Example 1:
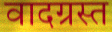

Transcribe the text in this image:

वादग्रस्त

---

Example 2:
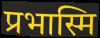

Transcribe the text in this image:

प्रभास्मि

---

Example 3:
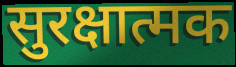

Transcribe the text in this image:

सुरक्षात्मक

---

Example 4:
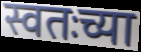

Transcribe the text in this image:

स्वतःच्या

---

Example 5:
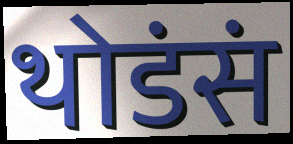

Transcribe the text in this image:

थोडंसं